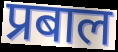
प्रबाल